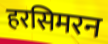
हरसिमरन